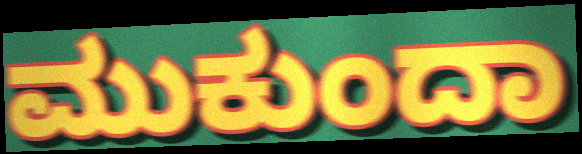
ಮುಕುಂದಾ